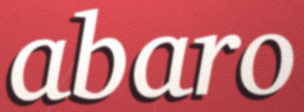
abaro